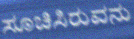
ಸೂಚಿಸಿರುವನು